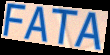
FATA